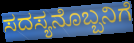
ಸದಸ್ಯನೊಬ್ಬನಿಗೆ